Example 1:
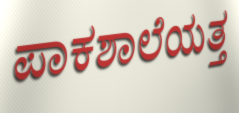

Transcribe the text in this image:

ಪಾಕಶಾಲೆಯತ್ತ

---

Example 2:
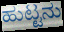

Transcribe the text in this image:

ಹುಟ್ಟನು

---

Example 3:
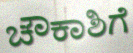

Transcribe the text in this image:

ಚೌಕಾಶಿಗೆ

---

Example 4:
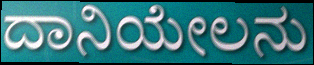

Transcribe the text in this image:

ದಾನಿಯೇಲನು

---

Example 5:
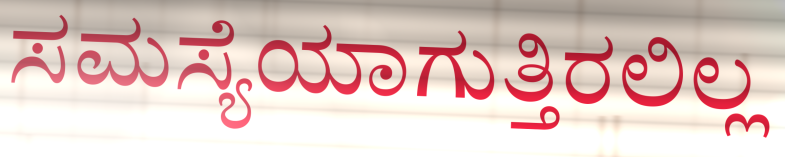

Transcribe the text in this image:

ಸಮಸ್ಯೆಯಾಗುತ್ತಿರಲಿಲ್ಲ